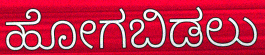
ಹೋಗಬಿಡಲು